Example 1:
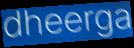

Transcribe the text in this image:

dheerga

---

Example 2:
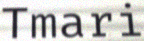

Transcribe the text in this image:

Tmari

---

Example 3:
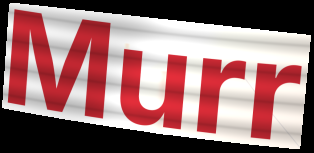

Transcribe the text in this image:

Murr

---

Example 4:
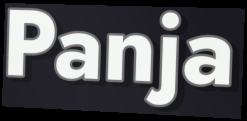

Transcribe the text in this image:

Panja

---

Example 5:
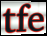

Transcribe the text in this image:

tfe